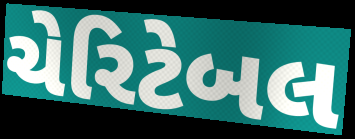
ચેરિટેબલ